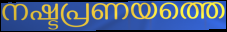
നഷ്ടപ്രണയത്തെ